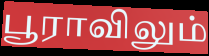
பூராவிலும்